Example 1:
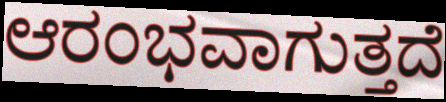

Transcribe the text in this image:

ಆರಂಭವಾಗುತ್ತದೆ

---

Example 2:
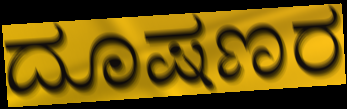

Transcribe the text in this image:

ದೂಷಣರ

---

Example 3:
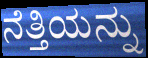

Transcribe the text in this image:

ನೆತ್ತಿಯನ್ನು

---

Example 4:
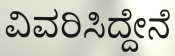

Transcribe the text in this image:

ವಿವರಿಸಿದ್ದೇನೆ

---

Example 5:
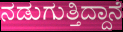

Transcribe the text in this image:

ನಡುಗುತ್ತಿದ್ದಾನೆ